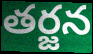
తర్జన